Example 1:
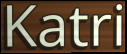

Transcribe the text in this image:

Katri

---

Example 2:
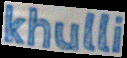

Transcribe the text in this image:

khulli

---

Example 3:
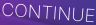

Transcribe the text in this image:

CONTINUE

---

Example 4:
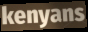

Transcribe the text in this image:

kenyans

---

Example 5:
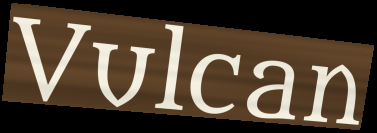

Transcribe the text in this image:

Vulcan